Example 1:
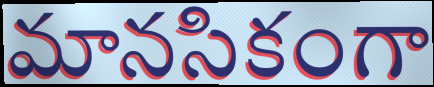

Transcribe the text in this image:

మానసికంగా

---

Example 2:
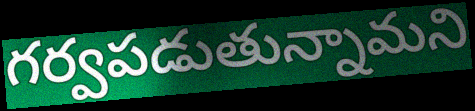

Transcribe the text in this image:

గర్వపడుతున్నామని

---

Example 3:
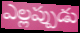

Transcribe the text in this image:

ఎల్లప్పుడు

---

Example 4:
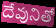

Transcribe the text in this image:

దేవునితో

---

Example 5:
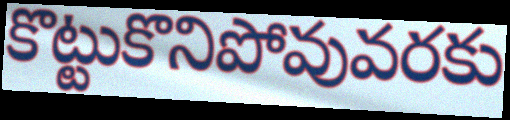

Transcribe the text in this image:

కొట్టుకొనిపోవువరకు